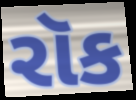
રૉક